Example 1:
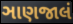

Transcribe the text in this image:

ઞાણજાલં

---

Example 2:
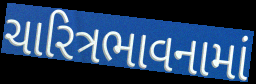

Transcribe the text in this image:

ચારિત્રભાવનામાં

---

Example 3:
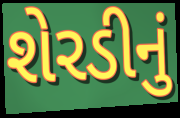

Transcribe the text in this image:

શેરડીનું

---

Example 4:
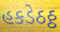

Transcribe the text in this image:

હકડેઠઠ્ઠ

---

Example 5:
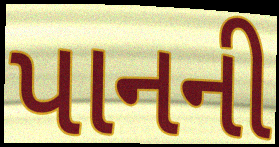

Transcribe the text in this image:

પાનની